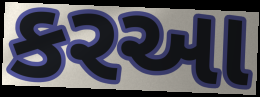
કરઆ